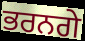
ਭਰਨਗੇ